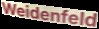
Weidenfeld